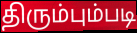
திரும்பும்படி